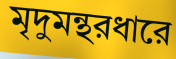
মৃদুমন্থরধারে